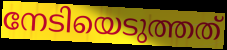
നേടിയെടുത്തത്